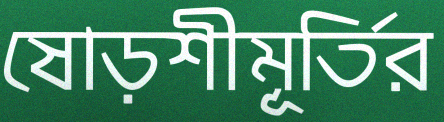
ষোড়শীমূর্তির